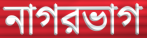
নাগরভাগ